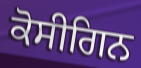
ਕੋਸੀਗਿਨ